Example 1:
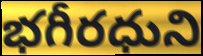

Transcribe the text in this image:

భగీరధుని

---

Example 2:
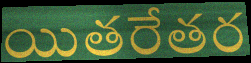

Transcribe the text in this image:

యితరేతర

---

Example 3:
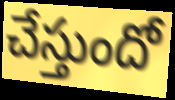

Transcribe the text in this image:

చేస్తుందో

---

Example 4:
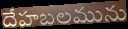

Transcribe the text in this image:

దేహబలమును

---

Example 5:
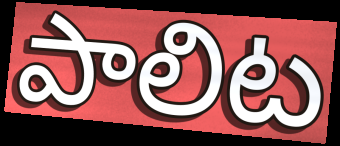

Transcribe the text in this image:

పాలిట